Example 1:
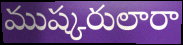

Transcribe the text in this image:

ముష్కరులారా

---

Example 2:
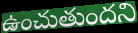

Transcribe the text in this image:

ఉంచుతుందని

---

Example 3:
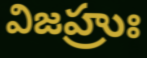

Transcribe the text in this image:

విజహ్రుః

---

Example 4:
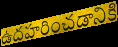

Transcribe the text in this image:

ఉదహరించడానికి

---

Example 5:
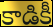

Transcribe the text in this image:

కాడికీ